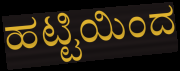
ಹಟ್ಟಿಯಿಂದ